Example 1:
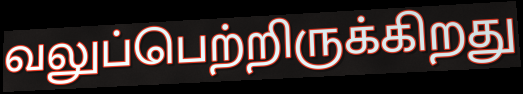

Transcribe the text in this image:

வலுப்பெற்றிருக்கிறது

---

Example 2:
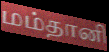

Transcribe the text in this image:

மம்தானி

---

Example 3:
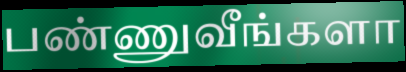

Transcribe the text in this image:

பண்ணுவீங்களா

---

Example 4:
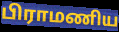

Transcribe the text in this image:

பிராமணிய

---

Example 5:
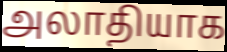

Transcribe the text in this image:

அலாதியாக